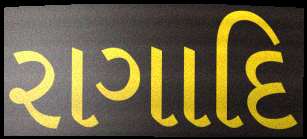
રાગાદિ